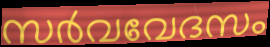
സർവവേദസം